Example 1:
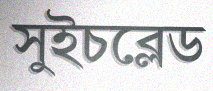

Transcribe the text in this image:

সুইচব্লেড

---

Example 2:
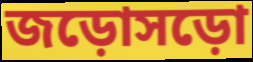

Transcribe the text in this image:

জড়োসড়ো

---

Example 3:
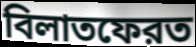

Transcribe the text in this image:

বিলাতফেরত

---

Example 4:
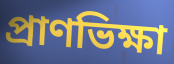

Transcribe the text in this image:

প্রাণভিক্ষা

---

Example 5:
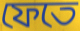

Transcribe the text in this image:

ফেতে